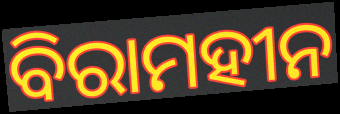
ବିରାମହୀନ